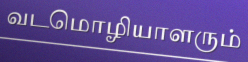
வடமொழியாளரும்